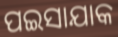
ପଇସାଯାକ